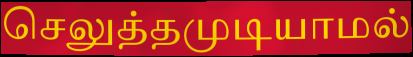
செலுத்தமுடியாமல்